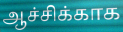
ஆச்சிக்காக